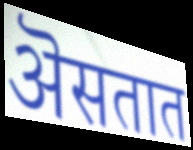
ऄसतात